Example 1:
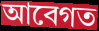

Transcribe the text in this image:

আবেগত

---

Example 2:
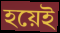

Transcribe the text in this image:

হয়েই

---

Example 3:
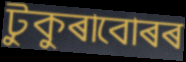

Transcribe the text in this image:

টুকুৰাবোৰৰ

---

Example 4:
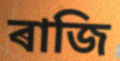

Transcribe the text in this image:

ৰাজি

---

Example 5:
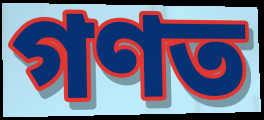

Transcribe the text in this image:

গণত